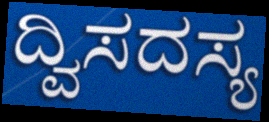
ದ್ವಿಸದಸ್ಯ